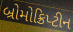
બ્રોમોક્રિપ્ટીન